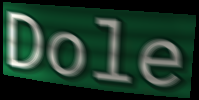
Dole